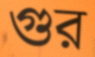
গুর